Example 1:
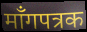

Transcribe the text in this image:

माँगपत्रक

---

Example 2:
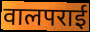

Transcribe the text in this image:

वालपराई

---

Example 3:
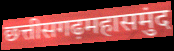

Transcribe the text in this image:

छत्तीसगढ़महासमुंद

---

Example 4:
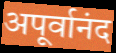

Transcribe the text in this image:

अपूर्वानंद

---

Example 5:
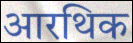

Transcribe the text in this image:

आरथिक